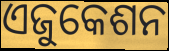
ଏଜୁକେଶନ